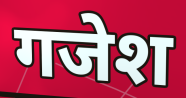
गजेश